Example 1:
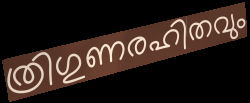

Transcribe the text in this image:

ത്രിഗുണരഹിതവും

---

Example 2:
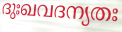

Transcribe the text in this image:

ദുഃഖവദന്യതഃ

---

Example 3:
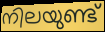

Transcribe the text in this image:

നിലയുണ്ട്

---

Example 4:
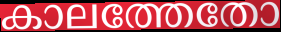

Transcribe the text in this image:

കാലത്തേതോ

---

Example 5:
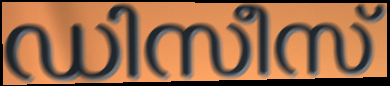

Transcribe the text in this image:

ഡിസീസ്